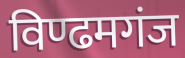
विण्ढमगंज